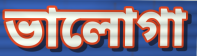
ভালোগা